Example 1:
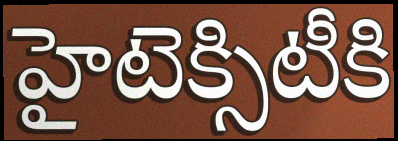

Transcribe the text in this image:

హైటెక్సిటీకి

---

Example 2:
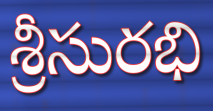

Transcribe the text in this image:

శ్రీసురభి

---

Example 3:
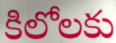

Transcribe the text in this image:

కిలోలకు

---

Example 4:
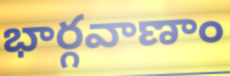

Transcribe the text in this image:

భార్గవాణాం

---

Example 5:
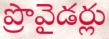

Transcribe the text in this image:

ప్రొవైడర్లు